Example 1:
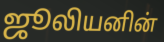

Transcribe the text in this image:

ஜூலியனின்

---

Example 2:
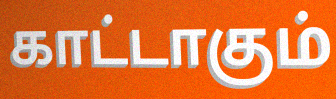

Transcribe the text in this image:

காட்டாகும்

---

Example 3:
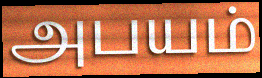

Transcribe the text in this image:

அபயம்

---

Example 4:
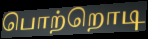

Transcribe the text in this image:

பொற்றொடி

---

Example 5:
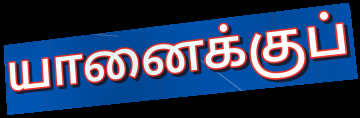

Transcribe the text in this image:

யானைக்குப்